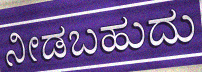
ನೀಡಬಹುದು